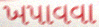
ખપાવવા